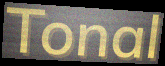
Tonal